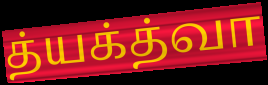
த்யக்த்வா